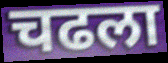
चढला